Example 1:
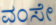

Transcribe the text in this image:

ವಂಸೇ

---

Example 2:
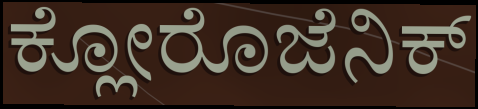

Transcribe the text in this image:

ಕ್ಲೋರೊಜೆನಿಕ್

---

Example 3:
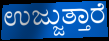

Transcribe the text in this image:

ಉಜ್ಜುತ್ತಾರೆ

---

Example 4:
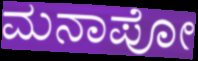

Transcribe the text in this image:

ಮನಾಪೋ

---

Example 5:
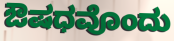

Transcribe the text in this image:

ಔಷಧವೊಂದು